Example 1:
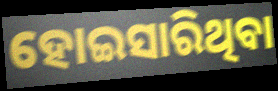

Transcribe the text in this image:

ହୋଇସାରିଥିବା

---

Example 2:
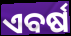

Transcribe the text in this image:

ଏବର୍ଷ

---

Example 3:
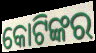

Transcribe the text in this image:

କୋଟିଙ୍କର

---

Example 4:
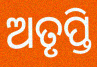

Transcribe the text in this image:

ଅତୃପ୍ତି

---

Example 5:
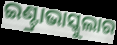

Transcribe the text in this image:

ଇଣ୍ଟ୍ରାଭାସ୍କୁଲାର